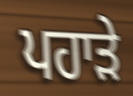
ਪਹਾੜੇ